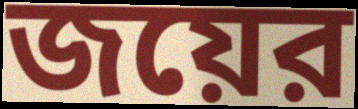
জয়ের